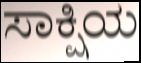
ಸಾಕ್ಷಿಯ